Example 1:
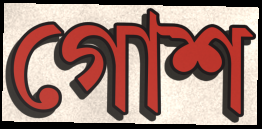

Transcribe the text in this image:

গোশ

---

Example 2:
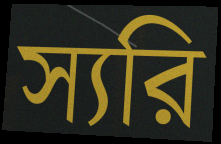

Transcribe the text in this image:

স্যরি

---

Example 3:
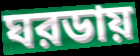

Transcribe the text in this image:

ঘরডায়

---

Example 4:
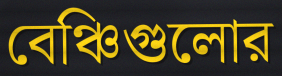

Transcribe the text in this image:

বেঞ্চিগুলোর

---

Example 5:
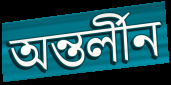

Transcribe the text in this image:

অন্তর্লীন